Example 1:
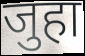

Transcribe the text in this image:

जुहा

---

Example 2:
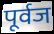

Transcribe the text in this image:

पूर्वज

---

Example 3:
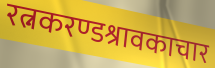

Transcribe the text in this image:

रत्नकरण्डश्रावकाचार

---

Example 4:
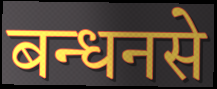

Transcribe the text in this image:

बन्धनसे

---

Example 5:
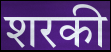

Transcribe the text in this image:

शरकी